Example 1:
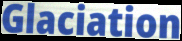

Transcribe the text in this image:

Glaciation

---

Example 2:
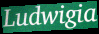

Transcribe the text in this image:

Ludwigia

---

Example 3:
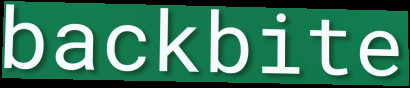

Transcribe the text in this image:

backbite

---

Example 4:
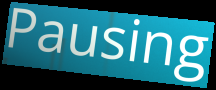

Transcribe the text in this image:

Pausing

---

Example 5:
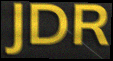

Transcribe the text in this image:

JDR